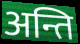
अन्ति